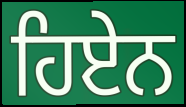
ਹਿਏਨ